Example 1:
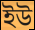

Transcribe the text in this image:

ইউ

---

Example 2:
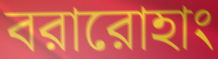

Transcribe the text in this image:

বরারোহাং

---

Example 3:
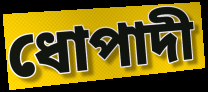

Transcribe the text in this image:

ধোপাদী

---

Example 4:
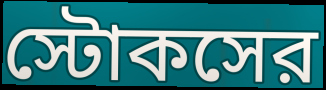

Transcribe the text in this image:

স্টোকসের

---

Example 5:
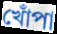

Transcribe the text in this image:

খোঁপা